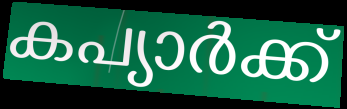
കപ്യാർക്ക്